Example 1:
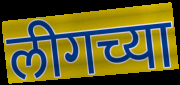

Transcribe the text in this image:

लीगच्या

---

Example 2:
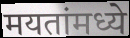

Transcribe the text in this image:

मयतांमध्ये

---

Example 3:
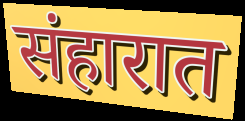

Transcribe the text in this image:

संहारात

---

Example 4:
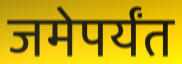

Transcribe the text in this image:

जमेपर्यंत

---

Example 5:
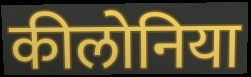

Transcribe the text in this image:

कीलोनिया